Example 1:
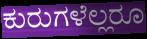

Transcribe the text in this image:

ಕುರುಗಳೆಲ್ಲರೂ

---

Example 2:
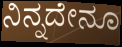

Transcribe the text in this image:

ನಿನ್ನದೇನೂ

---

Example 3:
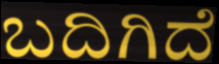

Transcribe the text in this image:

ಬದಿಗಿದೆ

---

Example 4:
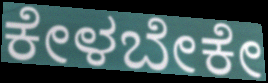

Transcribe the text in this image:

ಕೇಳಬೇಕೇ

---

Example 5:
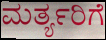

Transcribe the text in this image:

ಮರ್ತ್ಯರಿಗೆ